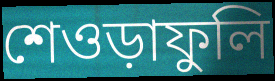
শেওড়াফুলি